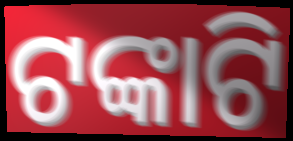
ଟଙ୍କାଟି